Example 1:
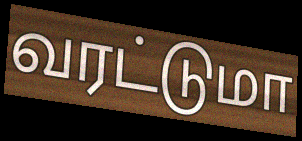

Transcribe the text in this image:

வரட்டுமா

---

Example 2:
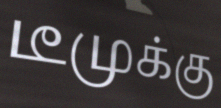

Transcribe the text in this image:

டீமுக்கு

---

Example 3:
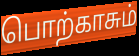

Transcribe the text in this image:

பொற்காசும்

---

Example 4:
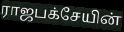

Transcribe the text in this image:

ராஜபக்சேயின்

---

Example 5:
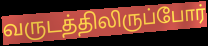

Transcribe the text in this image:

வருடத்திலிருப்போர்